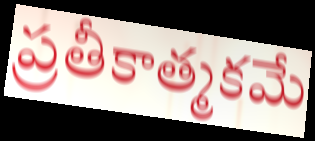
ప్రతీకాత్మకమే